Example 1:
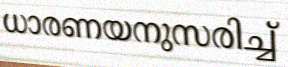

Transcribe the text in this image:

ധാരണയനുസരിച്ച്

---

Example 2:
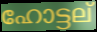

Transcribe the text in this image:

ഹോട്ടല്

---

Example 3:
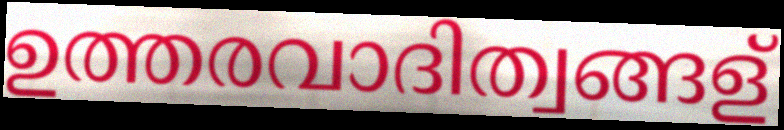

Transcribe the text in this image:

ഉത്തരവാദിത്വങ്ങള്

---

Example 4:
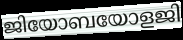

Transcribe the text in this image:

ജിയോബയോളജി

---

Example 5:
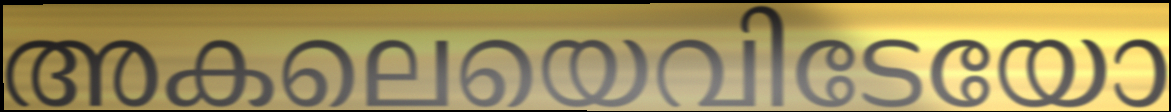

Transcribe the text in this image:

അകലെയെവിടേയോ